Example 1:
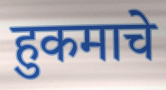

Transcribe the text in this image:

हुकमाचे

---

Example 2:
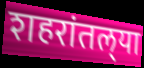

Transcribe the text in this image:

शहरांतल्या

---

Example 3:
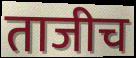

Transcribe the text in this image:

ताजीच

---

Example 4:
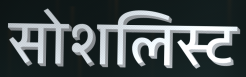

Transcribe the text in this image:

सोशलिस्ट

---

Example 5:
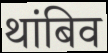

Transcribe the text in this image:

थांबिव